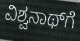
ವಿಶ್ವನಾಥ್‌ಗೆ